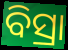
ବିସ୍ରା